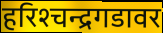
हरिश्चन्द्रगडावर